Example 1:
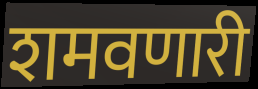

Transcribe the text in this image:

शमवणारी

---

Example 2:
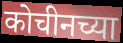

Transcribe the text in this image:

कोचीनच्या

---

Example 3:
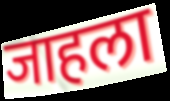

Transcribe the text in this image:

जाहला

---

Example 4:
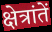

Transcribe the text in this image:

क्षेत्रांतें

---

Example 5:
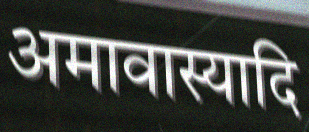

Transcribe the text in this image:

अमावास्यादि